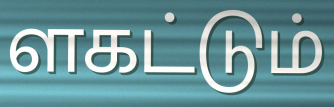
ளகட்டும்